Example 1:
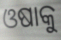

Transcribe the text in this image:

ଓଷାକୁ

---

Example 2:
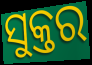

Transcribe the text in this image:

ସୁକ୍ତର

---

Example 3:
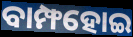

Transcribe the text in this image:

ବାମ୍ଫହୋଇ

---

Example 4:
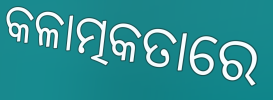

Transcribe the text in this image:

କଳାତ୍ମକତାରେ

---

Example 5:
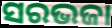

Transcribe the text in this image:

ସରଭଜା